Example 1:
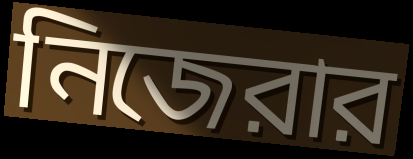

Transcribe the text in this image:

নিজেরার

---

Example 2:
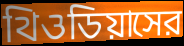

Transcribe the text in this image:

থিওডিয়াসের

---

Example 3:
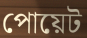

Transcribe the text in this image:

পোয়েট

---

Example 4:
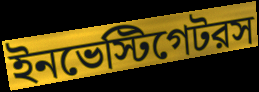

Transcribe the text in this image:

ইনভেস্টিগেটরস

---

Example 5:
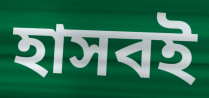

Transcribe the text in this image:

হাসবই